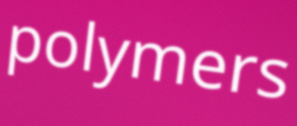
polymers